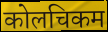
कोलचिकम